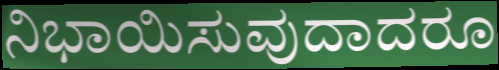
ನಿಭಾಯಿಸುವುದಾದರೂ